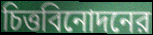
চিত্তবিনোদনের